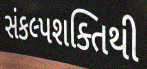
સંકલ્પશક્તિથી